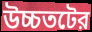
উচ্চতটের